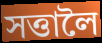
সত্তালৈ